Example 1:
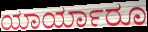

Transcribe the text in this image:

ಯಾರ್ಯಾರೂ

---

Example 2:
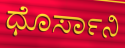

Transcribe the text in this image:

ಧೊರ್ಸಾನಿ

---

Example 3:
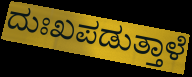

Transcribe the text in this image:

ದುಃಖಪಡುತ್ತಾಳೆ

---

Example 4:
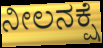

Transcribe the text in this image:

ನೀಲನಕ್ಷೆ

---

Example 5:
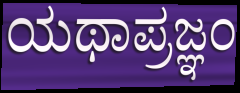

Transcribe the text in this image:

ಯಥಾಪ್ರಜ್ಞಂ